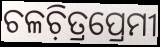
ଚଳଚ଼ିତ୍ରପ୍ରେମୀ